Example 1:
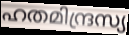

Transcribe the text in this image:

ഹതമിന്ദ്രസ്യ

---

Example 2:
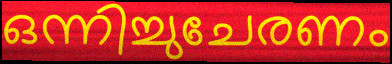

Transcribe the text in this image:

ഒന്നിച്ചുചേരണം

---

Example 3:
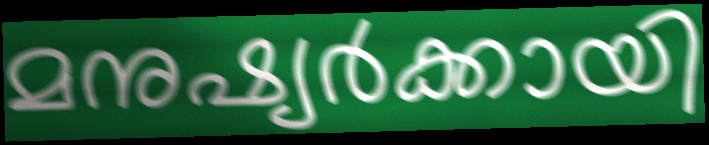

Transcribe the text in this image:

മനുഷ്യർക്കായി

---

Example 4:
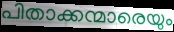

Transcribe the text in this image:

പിതാക്കന്മാരെയും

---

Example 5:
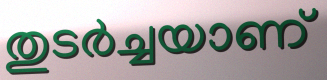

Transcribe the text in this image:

തുടർച്ചയാണ്